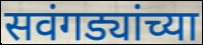
सवंगड्यांच्या